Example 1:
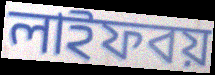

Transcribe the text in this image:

লাইফবয়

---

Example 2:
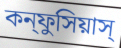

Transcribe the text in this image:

কন্ফুসিয়াস্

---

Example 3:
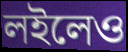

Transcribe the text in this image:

লইলেও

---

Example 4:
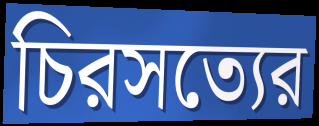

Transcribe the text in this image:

চিরসত্যের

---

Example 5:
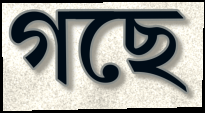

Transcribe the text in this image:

গছে